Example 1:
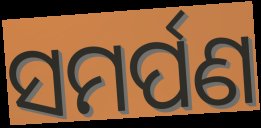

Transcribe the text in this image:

ସମର୍ପଣ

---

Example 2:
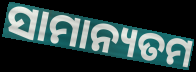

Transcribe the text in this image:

ସାମାନ୍ୟତମ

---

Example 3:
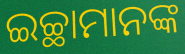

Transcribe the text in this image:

ଇଚ୍ଛାମାନଙ୍କ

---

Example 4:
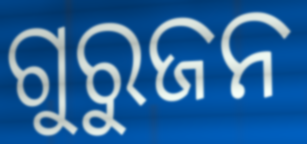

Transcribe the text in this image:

ଗୁରୁଜନ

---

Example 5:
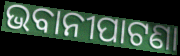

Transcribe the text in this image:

ଭବାନୀପାଟଣା